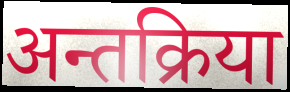
अन्तक्रिया